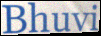
Bhuvi